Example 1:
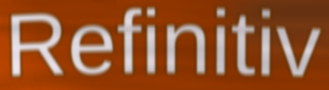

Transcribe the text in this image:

Refinitiv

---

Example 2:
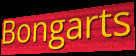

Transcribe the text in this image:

Bongarts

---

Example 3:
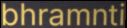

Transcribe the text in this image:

bhramnti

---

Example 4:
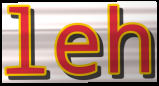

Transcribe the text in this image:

leh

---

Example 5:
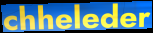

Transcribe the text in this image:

chheleder